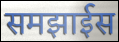
समझाईस